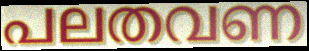
പലതവണ